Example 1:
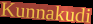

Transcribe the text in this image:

Kunnakudi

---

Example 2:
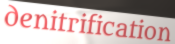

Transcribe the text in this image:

denitrification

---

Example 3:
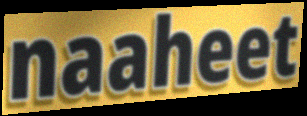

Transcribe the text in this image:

naaheet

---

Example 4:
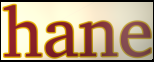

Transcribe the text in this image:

hane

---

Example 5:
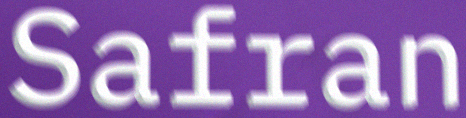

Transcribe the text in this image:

Safran